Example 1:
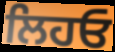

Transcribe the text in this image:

ਲਿਹਓ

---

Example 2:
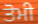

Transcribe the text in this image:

ਤੋਮੀ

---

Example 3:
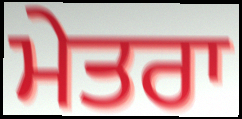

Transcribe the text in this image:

ਮੇਤਰਾ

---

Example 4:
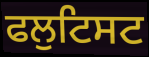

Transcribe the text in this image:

ਫਲੁਟਿਸਟ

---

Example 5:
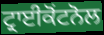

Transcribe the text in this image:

ਟ੍ਰਾਈਕੋਂਟਨੋਲ